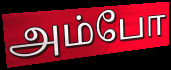
அம்போ